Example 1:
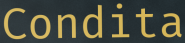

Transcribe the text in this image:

Condita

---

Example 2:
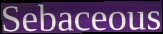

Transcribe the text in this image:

Sebaceous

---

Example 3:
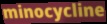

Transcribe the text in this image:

minocycline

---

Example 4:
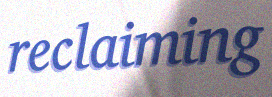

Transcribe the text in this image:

reclaiming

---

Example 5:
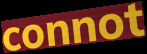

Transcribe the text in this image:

connot